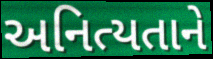
અનિત્યતાને